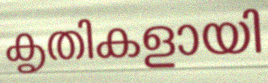
കൃതികളായി